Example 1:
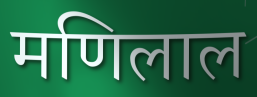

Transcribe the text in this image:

मणिलाल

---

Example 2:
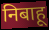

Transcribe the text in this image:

निबाहू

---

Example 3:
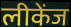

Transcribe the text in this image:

लीकेंज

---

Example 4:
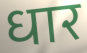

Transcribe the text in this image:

धार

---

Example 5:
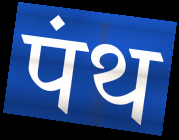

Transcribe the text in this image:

पंथ